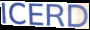
ICERD